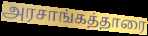
அரசாங்கத்தாரை